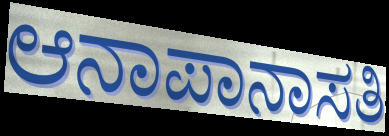
ಆನಾಪಾನಾಸತಿ